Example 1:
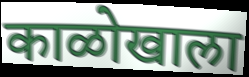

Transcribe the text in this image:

काळोखाला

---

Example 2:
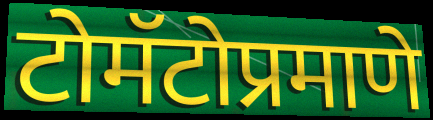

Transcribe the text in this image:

टोमॅटोप्रमाणे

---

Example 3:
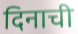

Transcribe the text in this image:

दिनाची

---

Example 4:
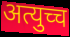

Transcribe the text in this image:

अत्युच्च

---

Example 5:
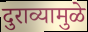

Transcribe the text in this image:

दुराव्यामुळे